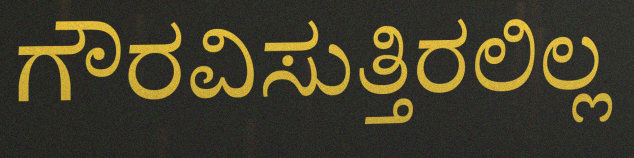
ಗೌರವಿಸುತ್ತಿರಲಿಲ್ಲ